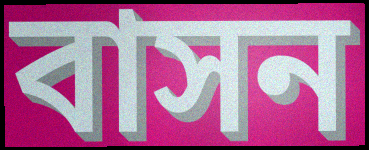
বাসন